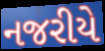
નજરીયે